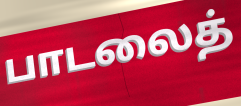
பாடலைத்